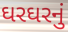
ઘરઘરનું